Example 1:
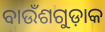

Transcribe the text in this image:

ବାଉଁଶଗୁଡ଼ାକ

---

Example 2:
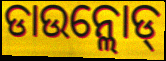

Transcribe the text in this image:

ଡାଉନ୍ଲୋଡ୍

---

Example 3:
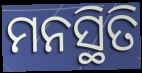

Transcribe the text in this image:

ମନସ୍ଥିତି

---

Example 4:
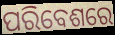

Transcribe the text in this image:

ପରିବେଶରେ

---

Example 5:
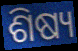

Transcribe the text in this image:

ଶିଷ୍ୟ